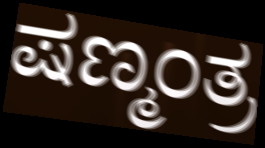
ಷಣ್ಮಂತ್ರ